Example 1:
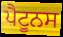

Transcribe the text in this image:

ਪੈਟੂਨਸ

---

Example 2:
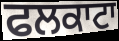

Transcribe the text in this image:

ਫਲਕਾਟਾ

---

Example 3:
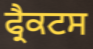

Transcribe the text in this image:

ਫ੍ਰੈਕਟਸ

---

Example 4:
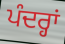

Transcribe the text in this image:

ਪੰਦਰ੍ਹਾਂ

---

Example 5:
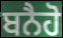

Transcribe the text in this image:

ਬਨੈਹੋ